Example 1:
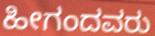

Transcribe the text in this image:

ಹೀಗಂದವರು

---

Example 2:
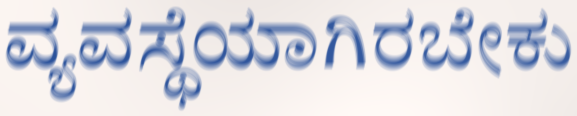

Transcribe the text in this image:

ವ್ಯವಸ್ಥೆಯಾಗಿರಬೇಕು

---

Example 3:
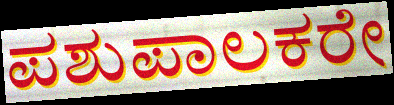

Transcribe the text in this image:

ಪಶುಪಾಲಕರೇ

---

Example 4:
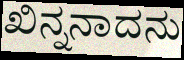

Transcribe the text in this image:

ಖಿನ್ನನಾದನು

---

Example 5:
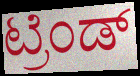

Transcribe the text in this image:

ಟ್ರೆಂಡ್